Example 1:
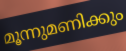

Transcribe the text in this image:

മൂന്നുമണിക്കും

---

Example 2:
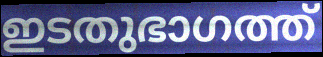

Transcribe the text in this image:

ഇടതുഭാഗത്ത്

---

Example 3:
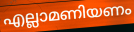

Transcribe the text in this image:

എല്ലാമണിയണം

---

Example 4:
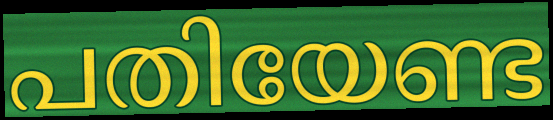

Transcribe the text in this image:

പതിയേണ്ട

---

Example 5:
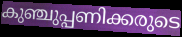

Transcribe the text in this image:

കുഞ്ചുപ്പണിക്കരുടെ